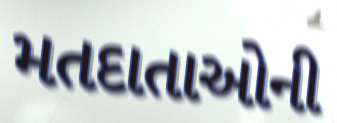
મતદાતાઓની